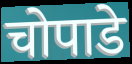
चोपाडे